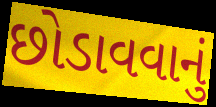
છોડાવવાનું